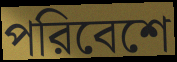
পরিবেশে